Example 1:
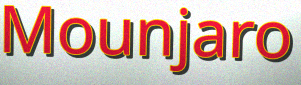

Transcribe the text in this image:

Mounjaro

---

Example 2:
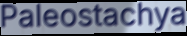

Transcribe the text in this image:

Paleostachya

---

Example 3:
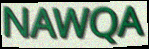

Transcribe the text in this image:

NAWQA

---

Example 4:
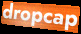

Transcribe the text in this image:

dropcap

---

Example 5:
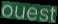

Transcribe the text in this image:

ouest